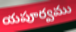
యపూర్వము